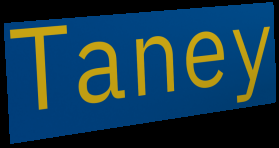
Taney